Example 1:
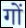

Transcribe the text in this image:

गों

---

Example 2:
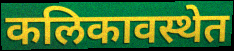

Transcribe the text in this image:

कलिकावस्थेत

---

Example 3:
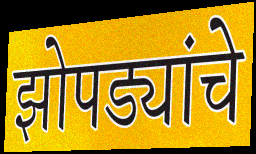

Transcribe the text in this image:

झोपड्यांचे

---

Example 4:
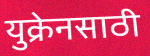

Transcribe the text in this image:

युक्रेनसाठी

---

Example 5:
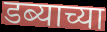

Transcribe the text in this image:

डब्याच्या